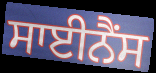
ਸਾਈਨੈਂਸ